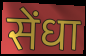
सेंधा